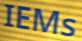
IEMs